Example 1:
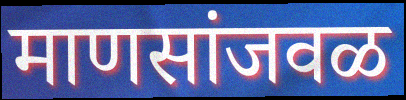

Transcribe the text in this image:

माणसांजवळ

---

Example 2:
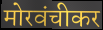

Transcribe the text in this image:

मोरवंचीकर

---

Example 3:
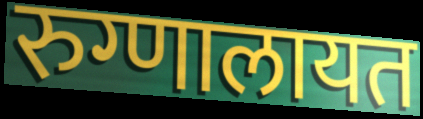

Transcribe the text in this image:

रुग्णालायत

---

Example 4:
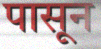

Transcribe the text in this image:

पासून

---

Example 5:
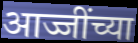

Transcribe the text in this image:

आज्जींच्या